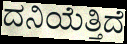
ದನಿಯೆತ್ತಿದೆ